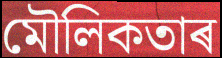
মৌলিকতাৰ